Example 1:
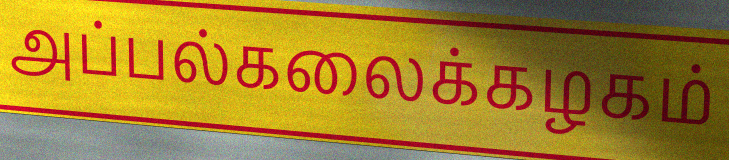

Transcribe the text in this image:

அப்பல்கலைக்கழகம்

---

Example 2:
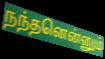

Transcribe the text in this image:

நந்தனென்னும்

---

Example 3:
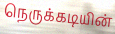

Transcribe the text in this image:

நெருக்கடியின்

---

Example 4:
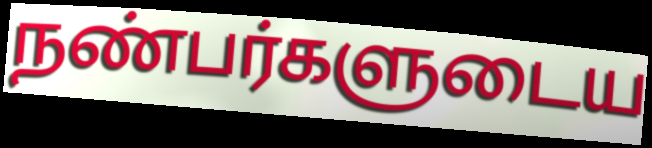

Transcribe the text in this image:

நண்பர்களுடைய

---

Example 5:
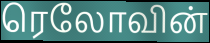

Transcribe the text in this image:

ரெலோவின்